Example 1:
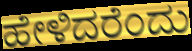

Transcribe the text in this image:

ಹೇಳಿದರೆಂದು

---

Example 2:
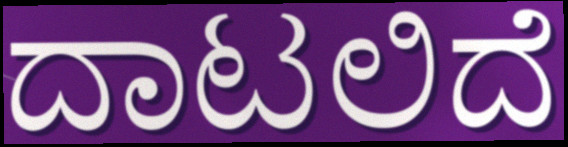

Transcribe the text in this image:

ದಾಟಲಿದೆ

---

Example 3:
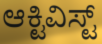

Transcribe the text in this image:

ಆಕ್ಟಿವಿಸ್ಟ್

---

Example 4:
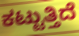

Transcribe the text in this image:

ಕಟ್ಟುತ್ತಿದೆ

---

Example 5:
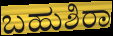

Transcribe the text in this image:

ಬಹುಶಿರಾ